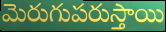
మెరుగుపరుస్తాయి